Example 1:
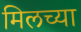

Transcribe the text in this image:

मिलच्या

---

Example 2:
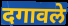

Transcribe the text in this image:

दगावले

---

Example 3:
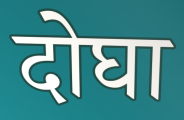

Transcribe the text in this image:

दोघा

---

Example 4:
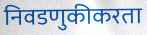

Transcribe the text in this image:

निवडणुकीकरता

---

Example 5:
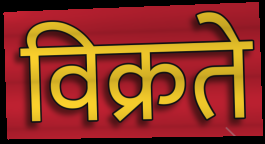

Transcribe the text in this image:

विक्रते